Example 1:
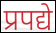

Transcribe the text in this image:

प्रपद्ये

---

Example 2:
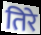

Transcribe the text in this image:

तिरे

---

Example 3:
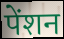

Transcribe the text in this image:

पेंशन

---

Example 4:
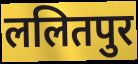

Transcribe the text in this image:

ललितपुर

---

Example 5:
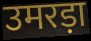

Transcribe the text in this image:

उमरड़ा